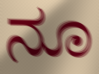
ನೂ